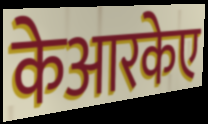
केआरकेए